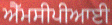
ਐੱਮਸੀਪੀਆਈ